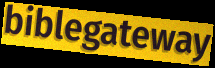
biblegateway